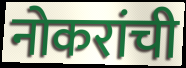
नोकरांची